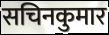
सचिनकुमार